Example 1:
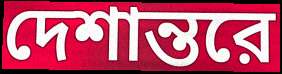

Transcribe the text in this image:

দেশান্তরে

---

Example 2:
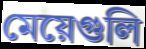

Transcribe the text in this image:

মেয়েগুলি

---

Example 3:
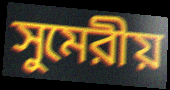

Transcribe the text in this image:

সুমেরীয়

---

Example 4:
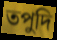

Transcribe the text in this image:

তপুদি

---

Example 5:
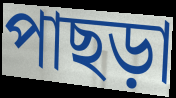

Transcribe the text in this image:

পাছড়া